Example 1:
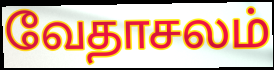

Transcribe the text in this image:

வேதாசலம்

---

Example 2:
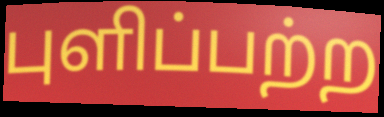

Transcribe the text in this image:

புளிப்பற்ற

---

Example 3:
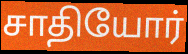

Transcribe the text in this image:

சாதியோர்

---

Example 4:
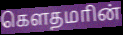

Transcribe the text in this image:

கௌதமரின்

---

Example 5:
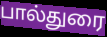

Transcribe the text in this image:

பால்துரை